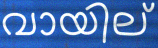
വായില്